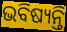
ଭବିଷ୍ୟନ୍ତି